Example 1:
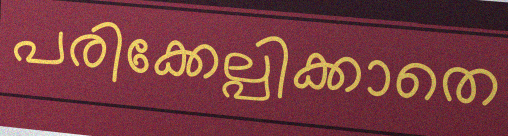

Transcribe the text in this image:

പരിക്കേല്പിക്കാതെ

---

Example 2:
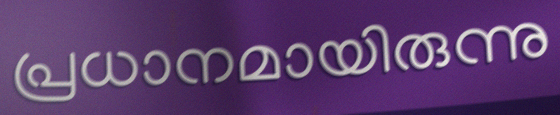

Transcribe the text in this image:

പ്രധാനമായിരുന്നു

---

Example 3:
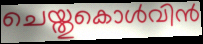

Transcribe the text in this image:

ചെയ്തുകൊൾവിൻ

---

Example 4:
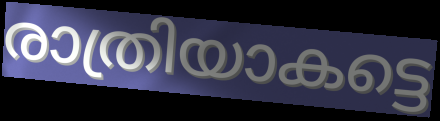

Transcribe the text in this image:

രാത്രിയാകട്ടെ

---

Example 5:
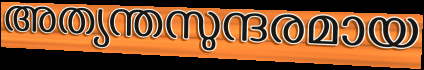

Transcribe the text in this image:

അത്യന്തസുന്ദരമായ